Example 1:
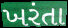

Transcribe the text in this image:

ખરંતા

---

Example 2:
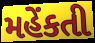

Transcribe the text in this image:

મહેંકતી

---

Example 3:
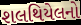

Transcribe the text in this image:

શલથિયેલનો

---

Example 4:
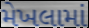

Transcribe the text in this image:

મેખલામાં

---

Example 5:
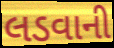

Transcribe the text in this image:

લડવાની